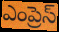
ఎంప్రెస్